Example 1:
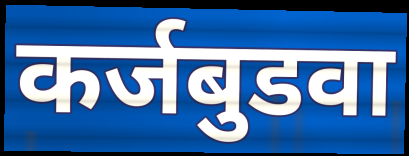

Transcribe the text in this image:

कर्जबुडवा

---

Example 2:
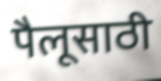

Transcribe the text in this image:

पैलूसाठी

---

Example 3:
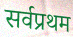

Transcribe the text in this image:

सर्वप्रथम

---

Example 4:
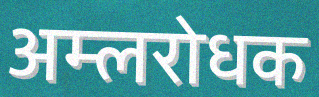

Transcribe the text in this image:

अम्लरोधक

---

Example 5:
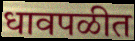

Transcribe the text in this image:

धावपळीत